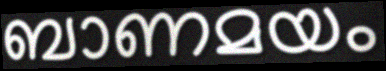
ബാണമയം